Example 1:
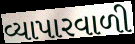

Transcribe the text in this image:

વ્યાપારવાળી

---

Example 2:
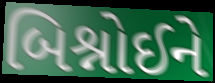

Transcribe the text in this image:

બિશ્નોઈને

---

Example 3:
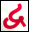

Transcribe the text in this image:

દ્વ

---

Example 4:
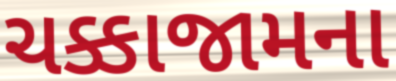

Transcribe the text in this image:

ચક્કાજામના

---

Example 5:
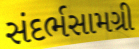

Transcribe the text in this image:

સંદર્ભસામગ્રી